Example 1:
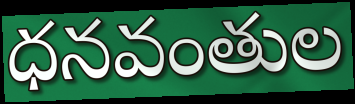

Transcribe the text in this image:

ధనవంతుల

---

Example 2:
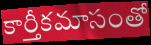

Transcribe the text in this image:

కార్తీకమాసంతో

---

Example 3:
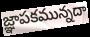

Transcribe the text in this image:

జ్ఞాపకమున్నదా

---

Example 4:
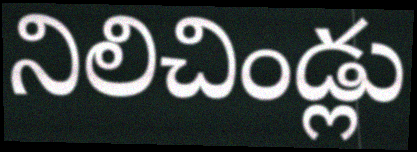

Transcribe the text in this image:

నిలిచిండ్లు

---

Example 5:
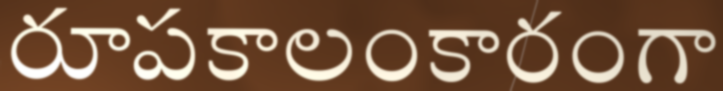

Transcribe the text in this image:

రూపకాలంకారంగా